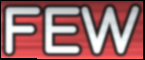
FEW